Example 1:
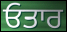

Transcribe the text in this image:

ਓਤਾਰ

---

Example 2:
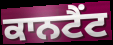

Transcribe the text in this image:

ਕਾਨਟੈਂਟ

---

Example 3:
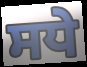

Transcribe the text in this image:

ਸਧੇ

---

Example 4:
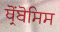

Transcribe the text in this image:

ਥ੍ਰੋਂਬੋਸਿਸ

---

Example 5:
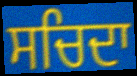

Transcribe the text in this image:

ਸਚਿਦਾ